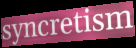
syncretism